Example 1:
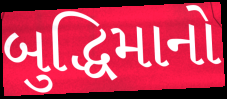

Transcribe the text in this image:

બુદ્ધિમાનો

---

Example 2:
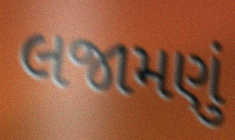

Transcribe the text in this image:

લજામણું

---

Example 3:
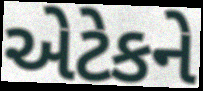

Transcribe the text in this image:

એટેકને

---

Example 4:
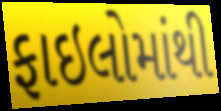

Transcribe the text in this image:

ફાઇલોમાંથી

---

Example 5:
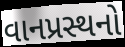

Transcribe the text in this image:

વાનપ્રસ્થનો